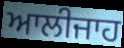
ਆਲੀਜਾਹ